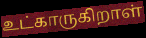
உட்காருகிறாள்